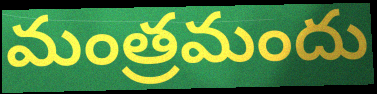
మంత్రమందు